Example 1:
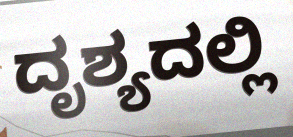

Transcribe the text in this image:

ದೃಶ್ಯದಲ್ಲಿ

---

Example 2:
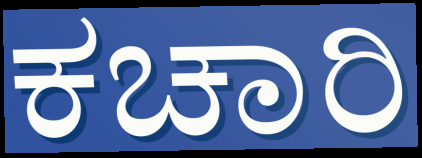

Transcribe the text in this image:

ಕಚಾರಿ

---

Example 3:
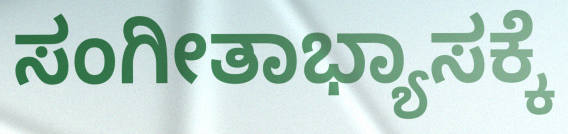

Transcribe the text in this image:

ಸಂಗೀತಾಭ್ಯಾಸಕ್ಕೆ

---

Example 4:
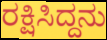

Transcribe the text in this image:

ರಕ್ಷಿಸಿದ್ದನು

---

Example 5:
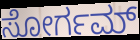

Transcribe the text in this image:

ಸೋರ್ಗಮ್